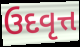
ઉદવૃત્ત